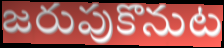
జరుపుకొనుట